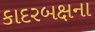
કાદરબક્ષના